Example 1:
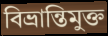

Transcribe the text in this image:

বিভ্রান্তিমুক্ত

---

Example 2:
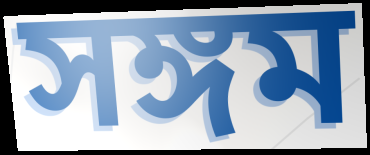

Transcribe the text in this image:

সঙ্গম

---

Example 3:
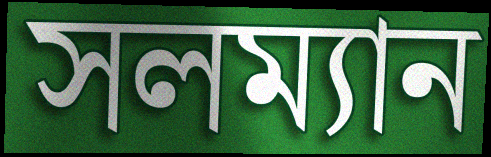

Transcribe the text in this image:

সলম্যান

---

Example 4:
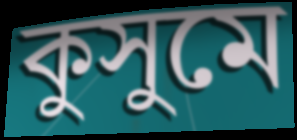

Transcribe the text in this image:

কুসুমে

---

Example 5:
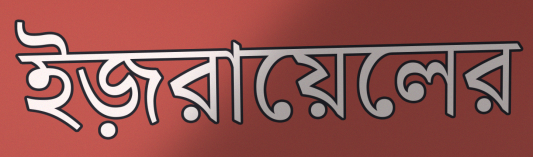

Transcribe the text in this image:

ইজ়রায়েলের